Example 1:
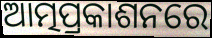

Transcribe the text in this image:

ଆତ୍ମପ୍ରକାଶନରେ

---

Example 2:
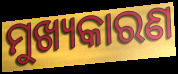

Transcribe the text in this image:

ମୁଖ୍ୟକାରଣ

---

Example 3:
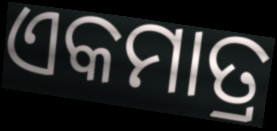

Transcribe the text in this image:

ଏକମାତ୍ର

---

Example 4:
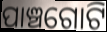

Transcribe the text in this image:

ପାଞ୍ଚଗୋଟି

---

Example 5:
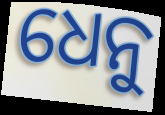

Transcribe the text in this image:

ଧେନୁ